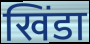
खिंडा